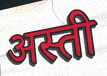
अस्ती